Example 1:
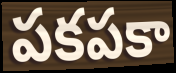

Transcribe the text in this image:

పకపకా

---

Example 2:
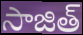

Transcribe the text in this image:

సాజిత్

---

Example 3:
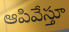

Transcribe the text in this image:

ఆపివేస్తూ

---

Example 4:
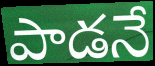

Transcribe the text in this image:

పాడనే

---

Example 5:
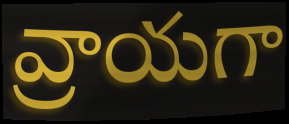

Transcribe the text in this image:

వ్రాయగా